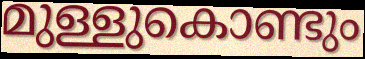
മുള്ളുകൊണ്ടും